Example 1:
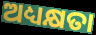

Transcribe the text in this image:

ଅଧ୍ୟକ୍ଷତା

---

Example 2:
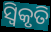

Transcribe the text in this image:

ସ୍ଵିକୃତି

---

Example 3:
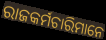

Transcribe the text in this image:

ରାଜକର୍ମଚାରିମାନେ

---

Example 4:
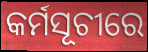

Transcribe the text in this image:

କର୍ମସୂଚୀରେ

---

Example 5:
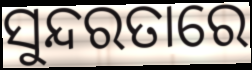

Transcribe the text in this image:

ସୁନ୍ଦରତାରେ